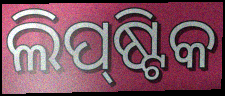
ଲିପ୍‌ଷ୍ଟିକ